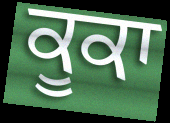
ਕੂਕਾ